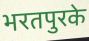
भरतपुरके